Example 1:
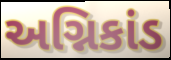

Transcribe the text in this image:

અગ્નિકાંડ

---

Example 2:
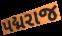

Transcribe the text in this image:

પદ્મરાજ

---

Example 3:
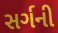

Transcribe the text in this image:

સર્ગની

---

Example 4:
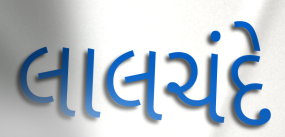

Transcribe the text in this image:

લાલચંદે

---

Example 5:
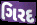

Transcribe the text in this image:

ગિરદ